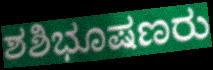
ಶಶಿಭೂಷಣರು